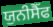
ਯੁਨੀਸੈੱਫ